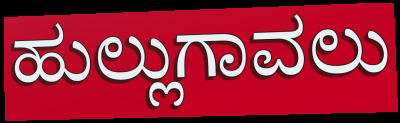
ಹುಲ್ಲುಗಾವಲು